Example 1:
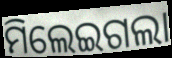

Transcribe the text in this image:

ମିଲେଇଗଲା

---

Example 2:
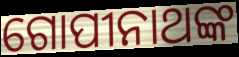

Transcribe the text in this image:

ଗୋପୀନାଥଙ୍କ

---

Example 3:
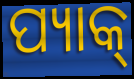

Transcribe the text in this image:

ପ୍ୟାକ୍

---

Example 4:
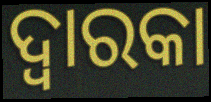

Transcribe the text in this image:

ଦ୍ୱାରକା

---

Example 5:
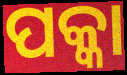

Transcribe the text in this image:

ପକ୍କା